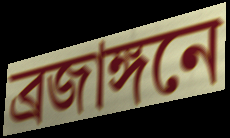
ব্রজাঙ্গনে